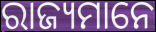
ରାଜ୍ୟମାନେ